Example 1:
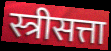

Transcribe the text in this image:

स्त्रीसत्ता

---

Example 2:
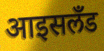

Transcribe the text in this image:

आइसलँड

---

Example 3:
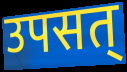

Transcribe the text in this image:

उपसत्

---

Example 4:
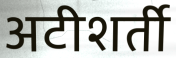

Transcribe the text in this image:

अटीशर्ती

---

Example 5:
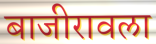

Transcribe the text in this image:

बाजीरावला